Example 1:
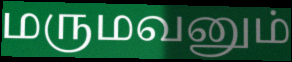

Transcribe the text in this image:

மருமவனும்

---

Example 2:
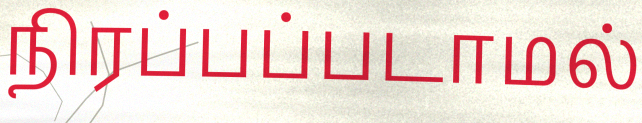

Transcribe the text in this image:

நிரப்பப்படாமல்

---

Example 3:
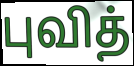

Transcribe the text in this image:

புவித்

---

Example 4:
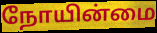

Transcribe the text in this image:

நோயின்மை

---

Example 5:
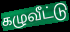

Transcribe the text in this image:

கழுவீட்டு